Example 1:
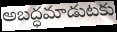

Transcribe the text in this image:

అబద్ధమాడుటకు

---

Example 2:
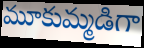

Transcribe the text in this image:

మూకుమ్మడిగా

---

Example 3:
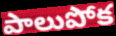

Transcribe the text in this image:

పాలుపోక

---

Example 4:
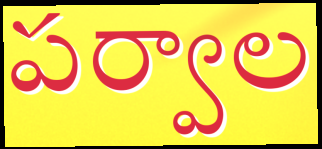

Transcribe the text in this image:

పర్వాల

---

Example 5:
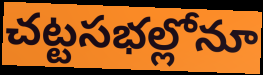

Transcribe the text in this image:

చట్టసభల్లోనూ